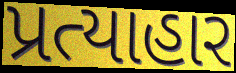
પ્રત્યાહાર